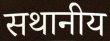
सथानीय